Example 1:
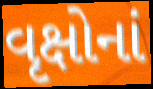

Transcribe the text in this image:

વૃક્ષોનાં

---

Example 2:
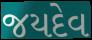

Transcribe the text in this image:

જયદેવ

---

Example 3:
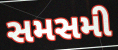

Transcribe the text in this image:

સમસમી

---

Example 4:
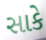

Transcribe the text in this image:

સાકે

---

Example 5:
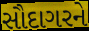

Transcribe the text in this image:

સૌદાગરને